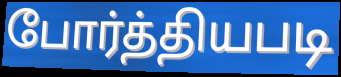
போர்த்தியபடி